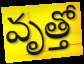
వృత్తో